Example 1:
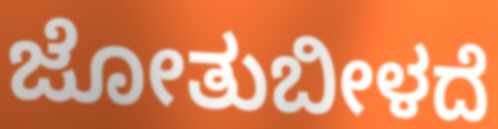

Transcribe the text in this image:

ಜೋತುಬೀಳದೆ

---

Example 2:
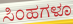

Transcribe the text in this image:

ಸಿಂಹಗಳೂ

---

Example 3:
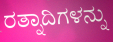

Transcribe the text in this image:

ರತ್ನಾದಿಗಳನ್ನು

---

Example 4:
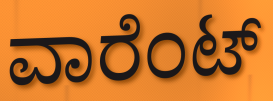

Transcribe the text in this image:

ವಾರೆಂಟ್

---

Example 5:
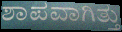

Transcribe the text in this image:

ಶಾಪವಾಗಿತ್ತು